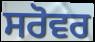
ਸਰੋਵਰ